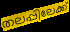
തലപ്പിലേക്ക്